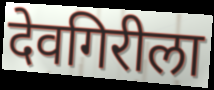
देवगिरीला